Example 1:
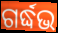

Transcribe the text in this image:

ଗର୍ଦ୍ଧଭ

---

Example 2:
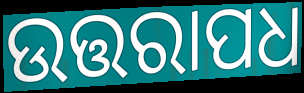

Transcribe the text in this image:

ଉତ୍ତରାପଧ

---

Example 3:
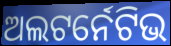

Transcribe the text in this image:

ଅଲଟର୍ନେଟିଭ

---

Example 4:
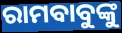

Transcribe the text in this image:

ରାମବାବୁଙ୍କୁ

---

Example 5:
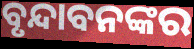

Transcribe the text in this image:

ବୃନ୍ଦାବନଙ୍କର